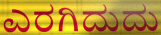
ಎರಗಿದುದು